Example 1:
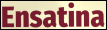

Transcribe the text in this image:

Ensatina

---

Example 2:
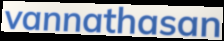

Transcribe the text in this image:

vannathasan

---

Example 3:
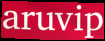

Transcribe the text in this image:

aruvip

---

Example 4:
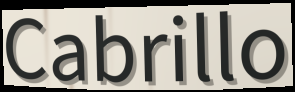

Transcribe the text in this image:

Cabrillo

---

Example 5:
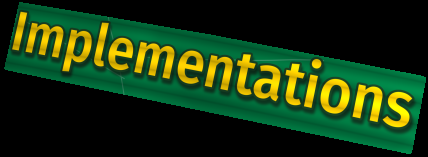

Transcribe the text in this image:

Implementations